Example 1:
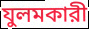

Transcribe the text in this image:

যুলমকারী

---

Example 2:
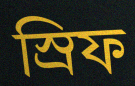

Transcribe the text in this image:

স্রিফ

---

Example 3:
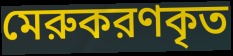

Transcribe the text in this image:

মেরুকরণকৃত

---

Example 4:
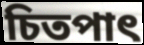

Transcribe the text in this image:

চিতপাৎ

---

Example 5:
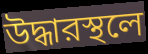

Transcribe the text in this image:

উদ্ধারস্থলে